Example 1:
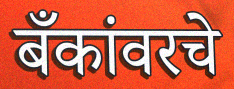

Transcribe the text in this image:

बँकांवरचे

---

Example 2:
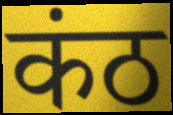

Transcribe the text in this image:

कंठ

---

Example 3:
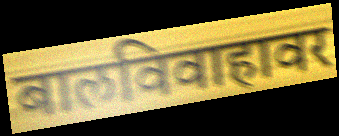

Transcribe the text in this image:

बालविवाहावर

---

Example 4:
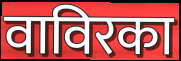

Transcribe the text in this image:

वाविरका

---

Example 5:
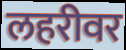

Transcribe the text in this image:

लहरीवर